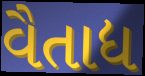
વૈતાદ્ય